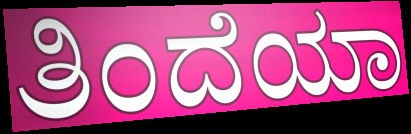
ತಿಂದೆಯಾ